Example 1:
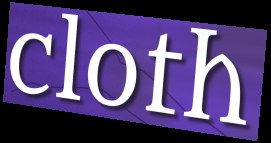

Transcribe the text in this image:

cloth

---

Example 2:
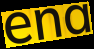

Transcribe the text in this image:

ena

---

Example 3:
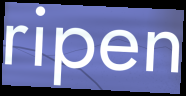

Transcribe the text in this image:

ripen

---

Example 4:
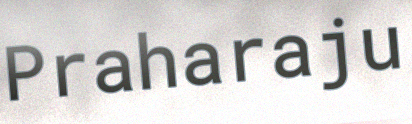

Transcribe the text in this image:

Praharaju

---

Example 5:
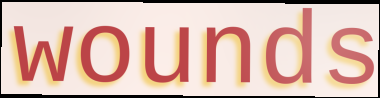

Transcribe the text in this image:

wounds